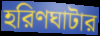
হরিণঘাটার